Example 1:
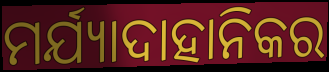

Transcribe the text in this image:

ମର୍ଯ୍ୟାଦାହାନିକର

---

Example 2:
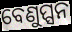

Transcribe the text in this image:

ବେଣୁପ୍ସନ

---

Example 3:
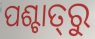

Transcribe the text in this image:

ପଶ୍ଚାତ୍‌ରୁ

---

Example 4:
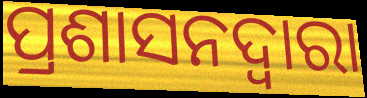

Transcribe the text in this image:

ପ୍ରଶାସନଦ୍ୱାରା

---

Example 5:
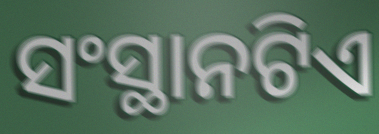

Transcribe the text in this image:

ସଂସ୍ଥାନଟିଏ